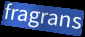
fragrans